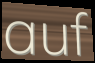
auf